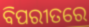
ବିପରୀତରେ